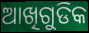
ଆଖିଗୁଡିକ